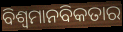
ବିଶ୍ଵମାନବିକତାର